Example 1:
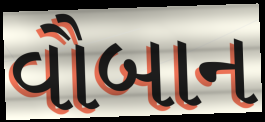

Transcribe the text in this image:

વૌબાન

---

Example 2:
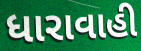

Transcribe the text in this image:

ધારાવાહી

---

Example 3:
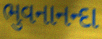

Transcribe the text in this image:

ભુવનાનન્દા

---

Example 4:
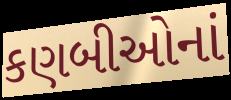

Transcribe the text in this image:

કણબીઓનાં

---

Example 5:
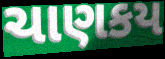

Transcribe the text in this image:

ચાણકય